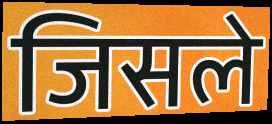
जिसले